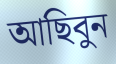
আছিবুন